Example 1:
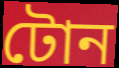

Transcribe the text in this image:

টোন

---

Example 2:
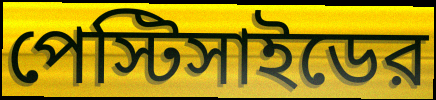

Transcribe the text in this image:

পেস্টিসাইডের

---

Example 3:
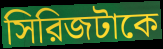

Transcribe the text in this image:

সিরিজটাকে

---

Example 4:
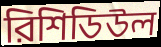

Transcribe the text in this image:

রিশিডিউল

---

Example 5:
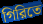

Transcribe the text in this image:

গিরিতে